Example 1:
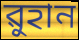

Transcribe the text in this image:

ৱুহান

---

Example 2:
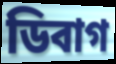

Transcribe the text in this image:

ডিবাগ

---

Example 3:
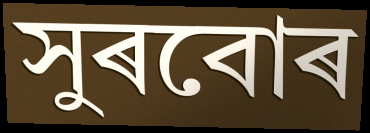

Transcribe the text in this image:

সুৰবোৰ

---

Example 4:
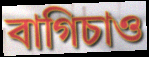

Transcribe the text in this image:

বাগিচাও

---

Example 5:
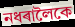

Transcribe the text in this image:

নধৰালৈকে